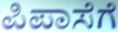
ಪಿಪಾಸೆಗೆ